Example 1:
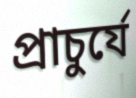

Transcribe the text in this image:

প্রাচুর্যে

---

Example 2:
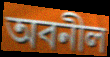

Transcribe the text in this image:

অবনীল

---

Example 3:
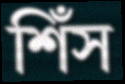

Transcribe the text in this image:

শিঁস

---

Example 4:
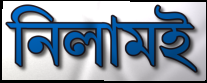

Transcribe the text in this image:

নিলামই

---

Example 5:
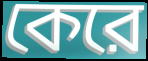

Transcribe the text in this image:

কেরে